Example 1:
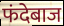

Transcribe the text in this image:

फंदेबाज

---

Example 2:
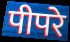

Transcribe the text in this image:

पीपरे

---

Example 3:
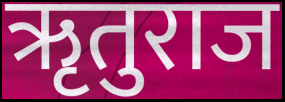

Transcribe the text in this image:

ऋृतुराज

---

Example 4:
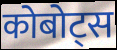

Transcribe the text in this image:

कोबोट्स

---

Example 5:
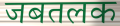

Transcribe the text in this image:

जबतलक